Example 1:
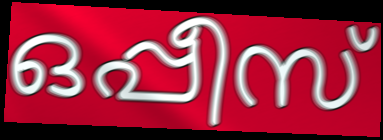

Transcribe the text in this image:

ഒപ്പീസ്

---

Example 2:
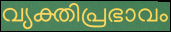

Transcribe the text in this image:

വ്യക്തിപ്രഭാവം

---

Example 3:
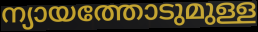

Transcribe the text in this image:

ന്യായത്തോടുമുള്ള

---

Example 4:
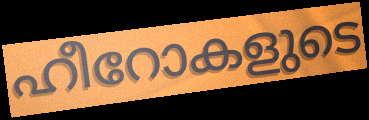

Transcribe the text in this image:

ഹീറോകളുടെ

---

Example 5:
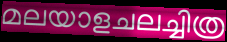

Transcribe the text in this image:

മലയാളചലച്ചിത്ര